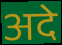
अदे